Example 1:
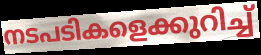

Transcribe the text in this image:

നടപടികളെക്കുറിച്ച്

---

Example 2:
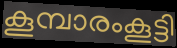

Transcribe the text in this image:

കൂമ്പാരംകൂട്ടി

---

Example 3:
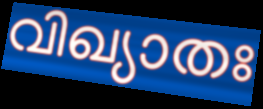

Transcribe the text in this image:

വിഖ്യാതഃ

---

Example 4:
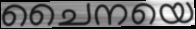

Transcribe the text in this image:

ചൈനയെ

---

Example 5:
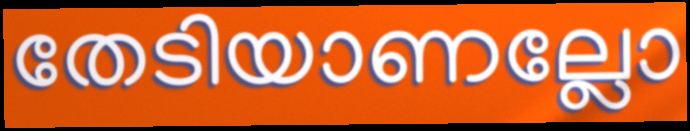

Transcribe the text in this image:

തേടിയാണല്ലോ